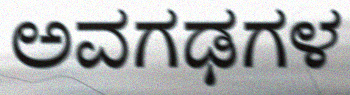
ಅವಗಢಗಳ